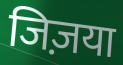
जिज़या